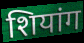
शियांग